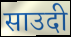
साउदी